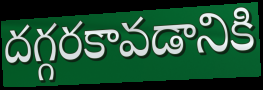
దగ్గరకావడానికి